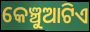
କେଞ୍ଚୁଆଟିଏ